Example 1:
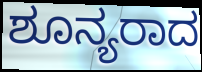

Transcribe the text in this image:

ಶೂನ್ಯರಾದ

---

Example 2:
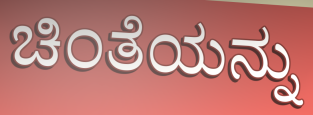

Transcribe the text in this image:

ಚಿಂತೆಯನ್ನು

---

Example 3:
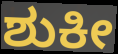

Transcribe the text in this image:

ಶುಕೀ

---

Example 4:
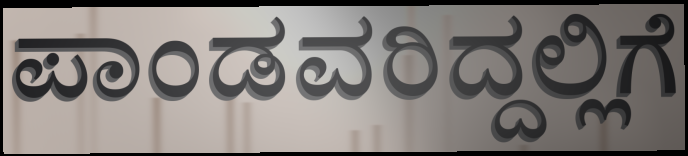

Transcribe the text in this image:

ಪಾಂಡವರಿದ್ದಲ್ಲಿಗೆ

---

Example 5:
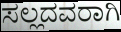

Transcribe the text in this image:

ಸಲ್ಲದವರಾಗಿ